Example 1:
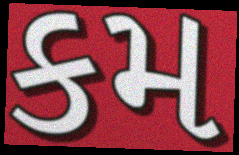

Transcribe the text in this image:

કમ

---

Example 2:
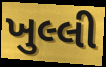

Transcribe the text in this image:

ખુલ્લી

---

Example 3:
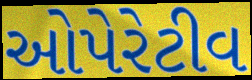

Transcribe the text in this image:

ઓપેરેટીવ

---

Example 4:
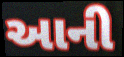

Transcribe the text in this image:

આની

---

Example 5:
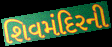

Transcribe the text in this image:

શિવમંદિરની